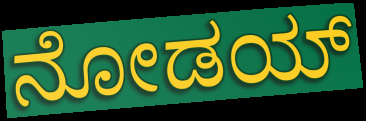
ನೋಡಯ್